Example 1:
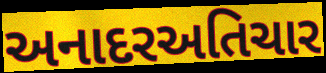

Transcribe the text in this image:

અનાદરઅતિચાર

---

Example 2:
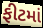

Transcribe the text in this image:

ફીટમાં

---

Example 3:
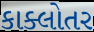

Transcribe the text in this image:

કાક્લોતર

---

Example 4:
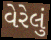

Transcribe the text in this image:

વેરેલું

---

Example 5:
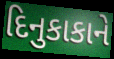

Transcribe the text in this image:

દિનુકાકાને